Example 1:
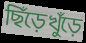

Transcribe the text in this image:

ছিঁড়েখুঁড়ে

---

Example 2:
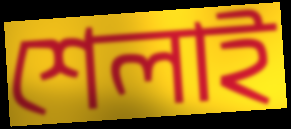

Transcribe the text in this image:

শেলাই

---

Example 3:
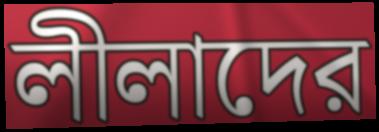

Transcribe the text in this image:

লীলাদের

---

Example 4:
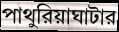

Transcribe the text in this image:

পাথুরিয়াঘাটার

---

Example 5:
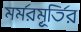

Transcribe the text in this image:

মর্মরমূর্তির